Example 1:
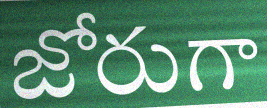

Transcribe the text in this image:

జోరుగా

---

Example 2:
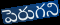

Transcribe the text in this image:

పెరుగని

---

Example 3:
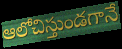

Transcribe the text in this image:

ఆలోచిస్తుండగానే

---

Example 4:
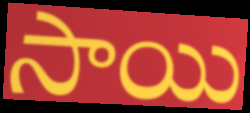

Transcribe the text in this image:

సాయి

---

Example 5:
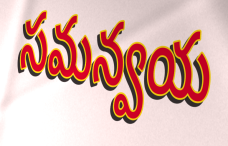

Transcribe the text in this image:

సమన్వయ